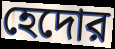
হেদোর